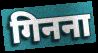
गिनना